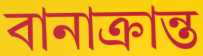
বানাক্ৰান্ত